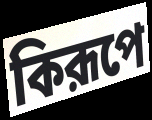
কিরূপে